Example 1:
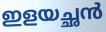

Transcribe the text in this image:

ഇളയച്ഛൻ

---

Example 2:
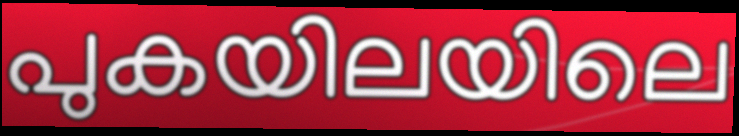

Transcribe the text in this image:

പുകയിലയിലെ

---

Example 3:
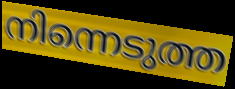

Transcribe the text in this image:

നിന്നെടുത്ത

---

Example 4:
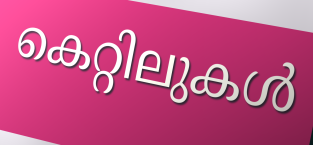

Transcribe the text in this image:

കെറ്റിലുകൾ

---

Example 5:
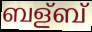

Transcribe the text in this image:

ബള്ബ്